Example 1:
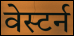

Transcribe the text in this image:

वेस्‍टर्न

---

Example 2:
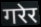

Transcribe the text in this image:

गरेर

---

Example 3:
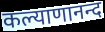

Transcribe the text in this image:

कल्याणानन्द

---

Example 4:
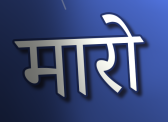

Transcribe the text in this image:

मारो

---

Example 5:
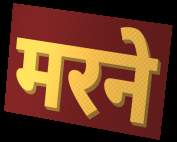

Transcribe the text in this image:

मरने